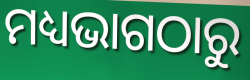
ମଧ୍ୟଭାଗଠାରୁ